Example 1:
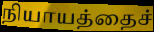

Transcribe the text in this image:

நியாயத்தைச்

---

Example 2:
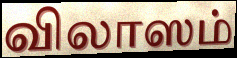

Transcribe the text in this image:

விலாஸம்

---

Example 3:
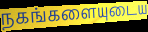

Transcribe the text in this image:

நகங்களையுடைய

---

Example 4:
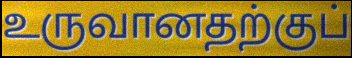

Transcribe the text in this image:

உருவானதற்குப்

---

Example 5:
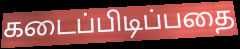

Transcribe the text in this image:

கடைப்பிடிப்பதை